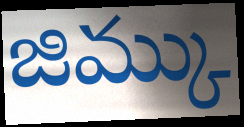
జిమ్కు